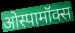
ओस्पामॉक्स